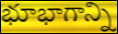
భూభాగాన్ని